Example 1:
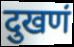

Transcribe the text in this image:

दुखणं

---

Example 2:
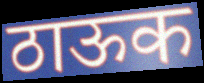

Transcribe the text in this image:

ठाऊक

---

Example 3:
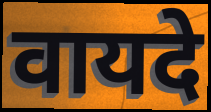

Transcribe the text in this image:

वायदे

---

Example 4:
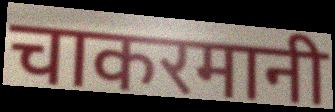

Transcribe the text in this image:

चाकरमानी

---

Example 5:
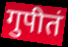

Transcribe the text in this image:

गुपीतं